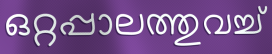
ഒറ്റപ്പാലത്തുവച്ച്